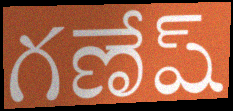
గణేష్